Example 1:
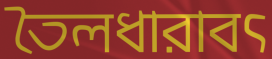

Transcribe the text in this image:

তৈলধারাবৎ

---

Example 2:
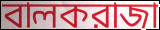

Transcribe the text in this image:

বালকরাজা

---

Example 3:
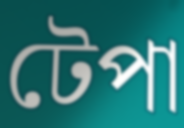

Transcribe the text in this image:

টেপা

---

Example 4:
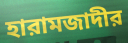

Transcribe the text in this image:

হারামজাদীর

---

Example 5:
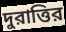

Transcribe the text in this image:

দুরাত্তির